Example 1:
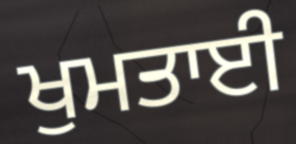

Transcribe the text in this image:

ਖੁਮਤਾਈ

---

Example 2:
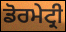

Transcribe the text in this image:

ਡੋਰਮੇਟ੍ਰੀ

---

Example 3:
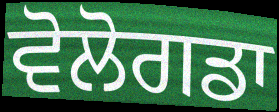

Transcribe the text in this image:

ਵੋਲੋਗਡਾ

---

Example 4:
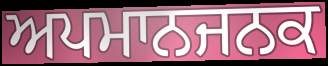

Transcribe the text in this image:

ਅਪਮਾਨਜਨਕ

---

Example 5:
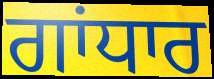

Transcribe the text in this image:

ਗਾਂਧਾਰ